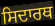
ਸਿਦਾਰਥ